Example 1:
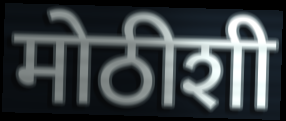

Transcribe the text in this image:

मोठीशी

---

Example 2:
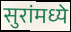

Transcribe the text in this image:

सुरांमध्ये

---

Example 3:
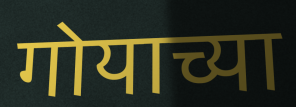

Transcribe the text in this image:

गोयाच्या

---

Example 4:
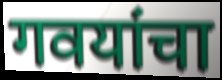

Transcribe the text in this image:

गवयांचा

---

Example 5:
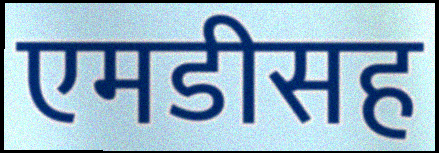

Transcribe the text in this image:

एमडीसह